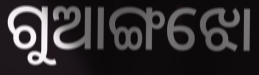
ଗୁଆଙ୍ଗଝୋ